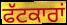
ਫੱਟਕਾਰਾਂ